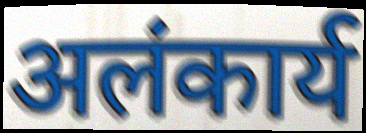
अलंकार्य